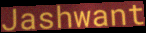
Jashwant